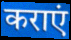
कराएं